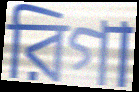
রিগা